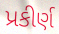
પ્રકીર્ણ